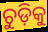
ଚୁଡ଼ିକୁ